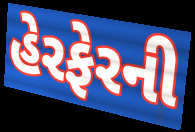
હેરફેરની